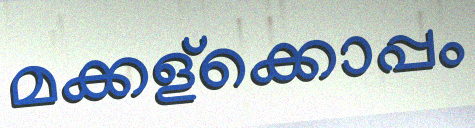
മക്കള്ക്കൊപ്പം